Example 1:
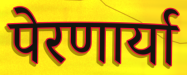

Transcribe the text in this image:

पेरणार्या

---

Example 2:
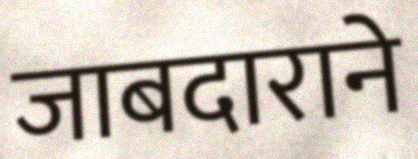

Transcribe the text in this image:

जाबदाराने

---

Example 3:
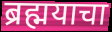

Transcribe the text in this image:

ब्रह्मयाचा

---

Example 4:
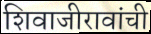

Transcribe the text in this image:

शिवाजीरावांची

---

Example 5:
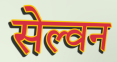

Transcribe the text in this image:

सेल्वन